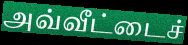
அவ்வீட்டைச்